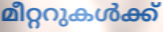
മീറ്ററുകൾക്ക്